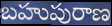
బహుపురాణ